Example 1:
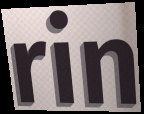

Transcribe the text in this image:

rin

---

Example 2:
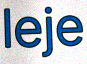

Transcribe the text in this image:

leje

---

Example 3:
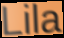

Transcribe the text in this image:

Lila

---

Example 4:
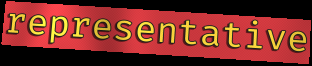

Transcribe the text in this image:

representative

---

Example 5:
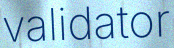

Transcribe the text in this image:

validator